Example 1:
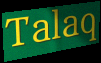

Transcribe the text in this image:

Talaq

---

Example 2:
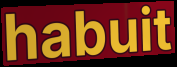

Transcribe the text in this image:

habuit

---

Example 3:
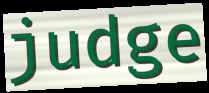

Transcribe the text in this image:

judge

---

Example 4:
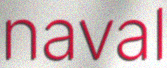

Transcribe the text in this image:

naval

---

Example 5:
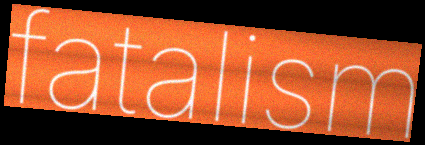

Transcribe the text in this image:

fatalism